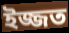
ইজ্জত